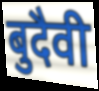
बुदैवी